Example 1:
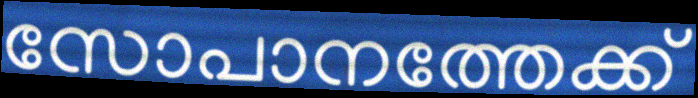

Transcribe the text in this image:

സോപാനത്തേക്ക്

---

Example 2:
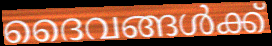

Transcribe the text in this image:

ദൈവങ്ങൾക്ക്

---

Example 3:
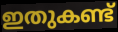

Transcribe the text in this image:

ഇതുകണ്ട്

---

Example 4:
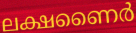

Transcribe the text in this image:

ലക്ഷണൈർ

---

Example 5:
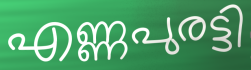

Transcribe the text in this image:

എണ്ണപുരട്ടി